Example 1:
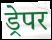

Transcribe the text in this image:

ड्रेपर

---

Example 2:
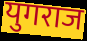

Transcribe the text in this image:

युगराज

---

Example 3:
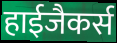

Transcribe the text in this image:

हाईजैकर्स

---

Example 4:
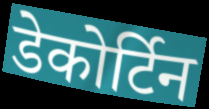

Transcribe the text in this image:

डेकोर्टिन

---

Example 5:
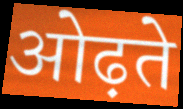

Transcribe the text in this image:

ओढ़ते